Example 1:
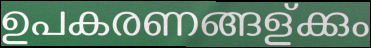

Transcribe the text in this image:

ഉപകരണങ്ങള്ക്കും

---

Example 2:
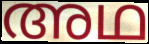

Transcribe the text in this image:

അഥ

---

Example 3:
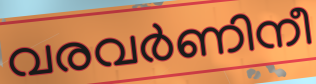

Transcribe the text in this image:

വരവർണിനീ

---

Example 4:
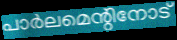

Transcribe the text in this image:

പാർലമെന്റിനോട്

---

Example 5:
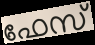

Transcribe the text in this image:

ഫേസ്